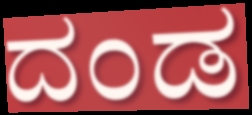
ದಂಡ